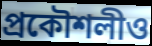
প্রকৌশলীও